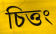
চিত্তং